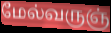
மேல்வருஞ்